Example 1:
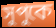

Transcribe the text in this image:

সুপুকে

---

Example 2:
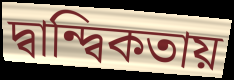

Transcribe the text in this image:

দ্বান্দ্বিকতায়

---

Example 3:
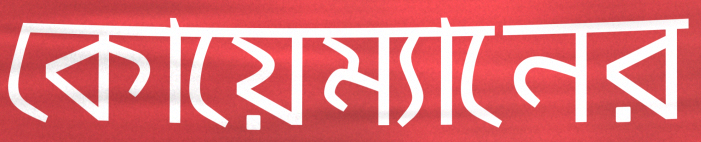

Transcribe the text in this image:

কোয়েম্যানের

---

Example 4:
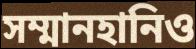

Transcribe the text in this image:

সম্মানহানিও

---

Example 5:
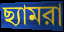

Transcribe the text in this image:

ছ্যামরা